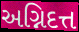
અગ્નિદત્ત